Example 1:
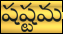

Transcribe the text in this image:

షష్టమ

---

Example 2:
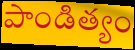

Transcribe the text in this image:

పాండిత్యం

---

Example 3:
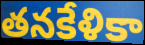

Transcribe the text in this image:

తనకేళికా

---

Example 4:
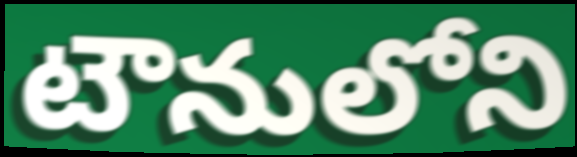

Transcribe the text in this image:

టౌనులోని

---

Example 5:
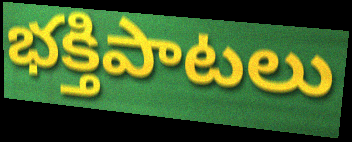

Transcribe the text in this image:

భక్తిపాటలు